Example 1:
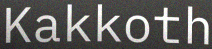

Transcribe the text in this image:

Kakkoth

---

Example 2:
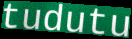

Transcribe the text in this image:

tudutu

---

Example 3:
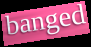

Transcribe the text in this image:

banged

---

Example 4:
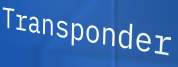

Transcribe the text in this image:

Transponder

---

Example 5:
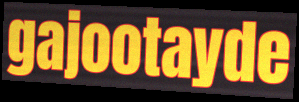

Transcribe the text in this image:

gajootayde